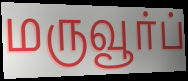
மருவூர்ப்